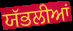
ਯੱਭਲੀਆਂ